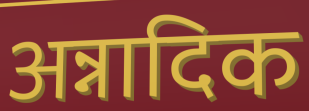
अन्नादिक